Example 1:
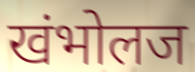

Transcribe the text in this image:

खंभोलज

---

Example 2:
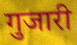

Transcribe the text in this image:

गुजारी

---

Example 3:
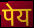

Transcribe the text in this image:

पेय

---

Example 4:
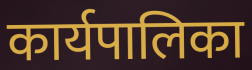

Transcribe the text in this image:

कार्यपालिका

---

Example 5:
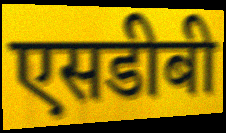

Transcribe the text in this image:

एसडीबी